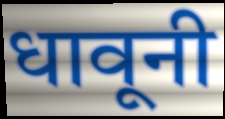
धावूनी